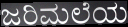
ಜರಿಮಲೆಯ